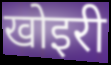
खोइरी